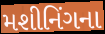
મશીનિંગના